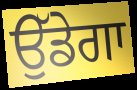
ਉੱਡੇਗਾ